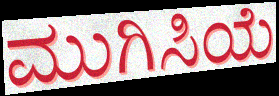
ಮುಗಿಸಿಯೆ